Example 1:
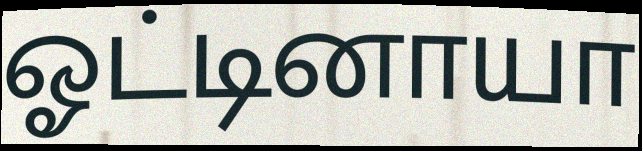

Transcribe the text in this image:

ஓட்டினாயா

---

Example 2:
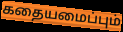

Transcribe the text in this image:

கதையமைப்பும்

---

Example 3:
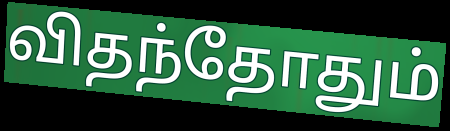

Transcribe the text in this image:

விதந்தோதும்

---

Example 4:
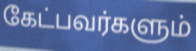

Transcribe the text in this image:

கேட்பவர்களும்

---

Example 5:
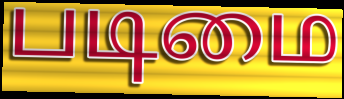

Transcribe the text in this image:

படிமை